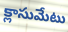
క్లాసుమేటు